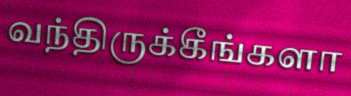
வந்திருக்கீங்களா